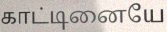
காட்டினையே